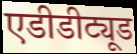
एडीडीट्यूड